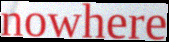
nowhere